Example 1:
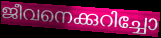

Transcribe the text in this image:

ജീവനെക്കുറിച്ചോ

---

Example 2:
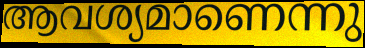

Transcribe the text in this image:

ആവശ്യമാണെന്നു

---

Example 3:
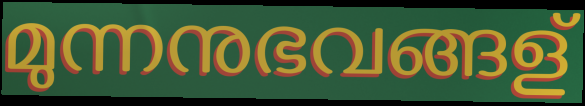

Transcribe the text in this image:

മുന്നനുഭവങ്ങള്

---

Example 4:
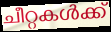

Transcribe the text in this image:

ചീറ്റകൾക്ക്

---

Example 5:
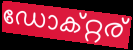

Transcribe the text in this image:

ഡോക്റ്റര്